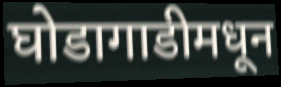
घोडागाडीमधून